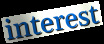
interest